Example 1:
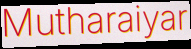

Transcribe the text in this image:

Mutharaiyar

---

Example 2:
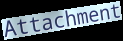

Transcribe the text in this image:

Attachment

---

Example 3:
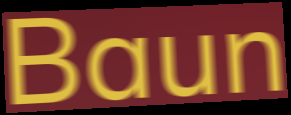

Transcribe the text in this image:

Baun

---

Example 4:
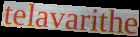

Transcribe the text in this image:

telavarithe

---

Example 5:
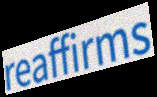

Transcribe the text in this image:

reaffirms